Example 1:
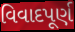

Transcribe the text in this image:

વિવાદપૂર્ણ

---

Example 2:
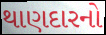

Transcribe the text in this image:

થાણદારનો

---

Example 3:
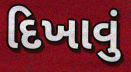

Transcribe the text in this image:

દિખાવું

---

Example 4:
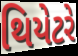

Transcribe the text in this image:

થિયેટરે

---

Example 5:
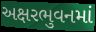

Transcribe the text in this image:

અક્ષરભુવનમાં